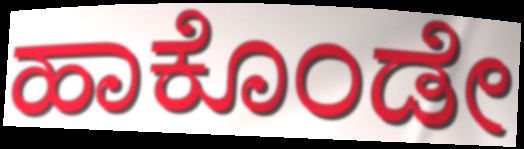
ಹಾಕೊಂಡೇ